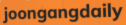
joongangdaily